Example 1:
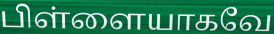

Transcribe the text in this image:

பிள்ளையாகவே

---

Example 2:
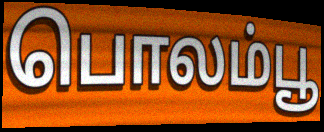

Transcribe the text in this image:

பொலம்பூ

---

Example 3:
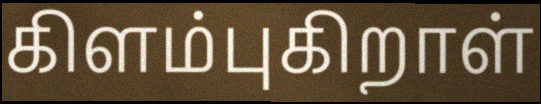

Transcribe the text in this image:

கிளம்புகிறாள்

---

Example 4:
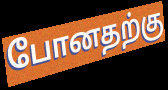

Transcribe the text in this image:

போனதற்கு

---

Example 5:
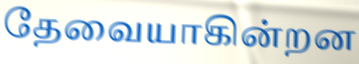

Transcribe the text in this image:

தேவையாகின்றன